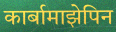
कार्बामाझेपिन